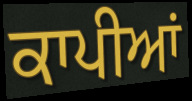
ਕਾਪੀਆਂ